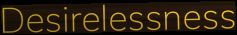
Desirelessness